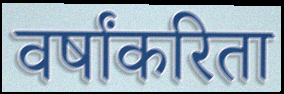
वर्षांकरिता